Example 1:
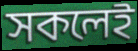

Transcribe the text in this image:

সকলেই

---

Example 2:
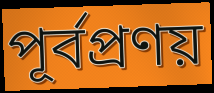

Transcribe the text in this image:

পূর্বপ্রণয়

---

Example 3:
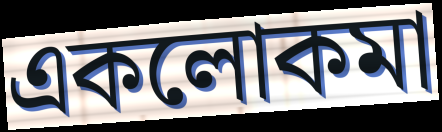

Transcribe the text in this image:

একলোকমা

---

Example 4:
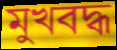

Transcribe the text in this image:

মুখবদ্ধ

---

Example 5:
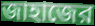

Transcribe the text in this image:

জাহাজের